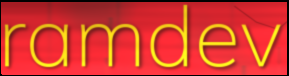
ramdev